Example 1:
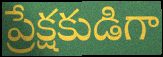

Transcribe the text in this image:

ప్రేక్షకుడిగా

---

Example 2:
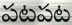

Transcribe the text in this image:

పటపట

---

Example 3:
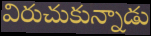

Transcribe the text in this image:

విరుచుకున్నాడు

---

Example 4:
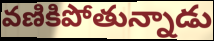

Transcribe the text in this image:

వణికిపోతున్నాడు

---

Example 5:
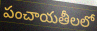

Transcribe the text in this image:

పంచాయతీలలో